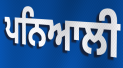
ਪਨਿਆਲੀ